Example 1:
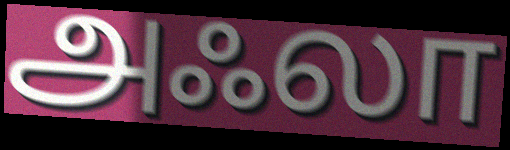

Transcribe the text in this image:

அஃலா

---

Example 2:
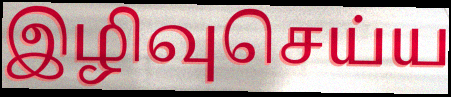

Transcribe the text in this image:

இழிவுசெய்ய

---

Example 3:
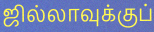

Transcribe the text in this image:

ஜில்லாவுக்குப்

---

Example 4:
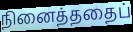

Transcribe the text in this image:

நினைத்ததைப்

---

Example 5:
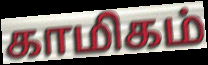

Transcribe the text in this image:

காமிகம்